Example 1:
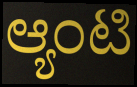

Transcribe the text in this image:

ಆ್ಯಂಟಿ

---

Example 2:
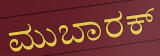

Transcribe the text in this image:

ಮುಬಾರಕ್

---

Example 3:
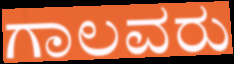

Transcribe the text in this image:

ಗಾಲವರು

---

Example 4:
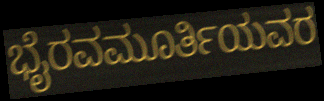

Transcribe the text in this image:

ಭೈರವಮೂರ್ತಿಯವರ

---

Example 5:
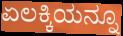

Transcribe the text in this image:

ಏಲಕ್ಕಿಯನ್ನೂ